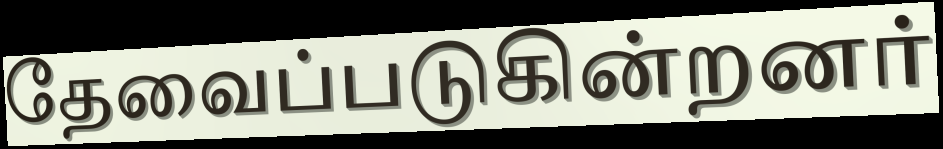
தேவைப்படுகின்றனர்